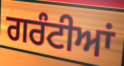
ਗਰੰਟੀਆਂ